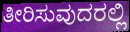
ತೀರಿಸುವುದರಲ್ಲಿ